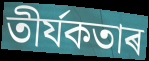
তীৰ্যকতাৰ